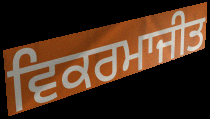
ਵਿਕਰਮਾਜੀਤ